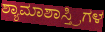
ಶ್ಯಾಮಾಶಾಸ್ತ್ರಿಗಳ